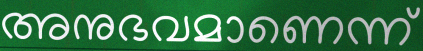
അനുഭവമാണെന്ന്